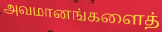
அவமானங்களைத்